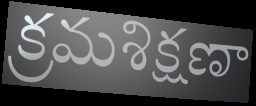
క్రమశిక్షణా